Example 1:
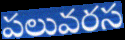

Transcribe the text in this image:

పలువరస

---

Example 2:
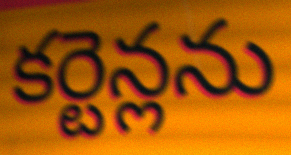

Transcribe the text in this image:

కర్టెన్లను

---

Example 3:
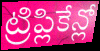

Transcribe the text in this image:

ట్రిప్లికేన్లో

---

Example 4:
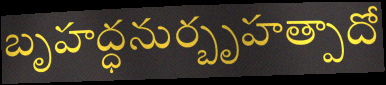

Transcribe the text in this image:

బృహద్ధనుర్బృహత్పాదో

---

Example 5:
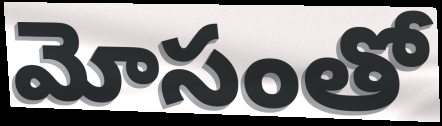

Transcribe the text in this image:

మోసంతో